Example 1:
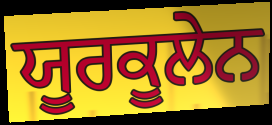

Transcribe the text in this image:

ਯੂਰਕੂਲੇਨ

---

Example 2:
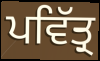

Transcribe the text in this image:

ਪਵਿੱਤ੍ਰ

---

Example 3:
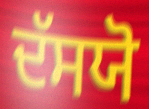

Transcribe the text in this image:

ਦੱਸਯੋ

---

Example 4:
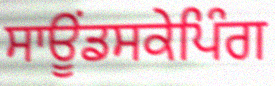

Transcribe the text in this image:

ਸਾਊਂਡਸਕੇਪਿੰਗ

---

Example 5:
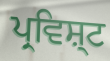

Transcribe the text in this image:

ਪ੍ਰਵਿਸ਼੍ਟ